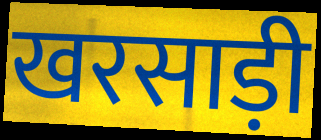
खरसाड़ी